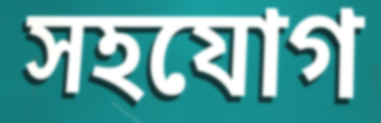
সহযোগ